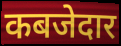
कबजेदार